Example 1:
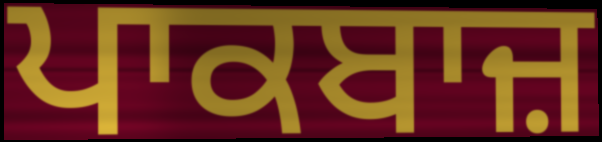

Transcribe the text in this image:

ਪਾਕਬਾਜ਼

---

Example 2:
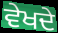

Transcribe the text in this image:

ਵੇਖਦੇ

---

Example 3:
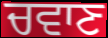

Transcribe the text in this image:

ਚਵਾਣ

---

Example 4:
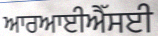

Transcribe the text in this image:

ਆਰਆਈਐੱਸਈ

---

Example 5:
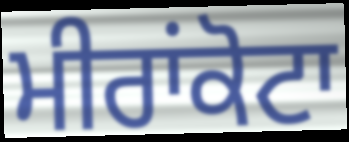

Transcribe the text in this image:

ਮੀਰਾਂਕੋਟਾ